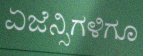
ಏಜೆನ್ಸಿಗಳಿಗೂ